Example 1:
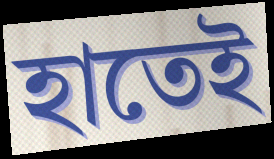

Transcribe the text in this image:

হাতেই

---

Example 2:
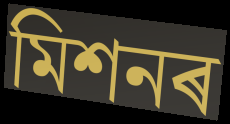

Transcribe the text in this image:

মিশনৰ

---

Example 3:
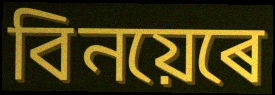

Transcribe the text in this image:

বিনয়েৰে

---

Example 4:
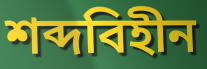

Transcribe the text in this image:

শব্দবিহীন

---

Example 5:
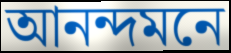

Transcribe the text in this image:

আনন্দমনে